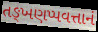
તઙ્ખણપ્પવત્તાનં